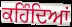
ਕਹਿੰਦਿਆਂ